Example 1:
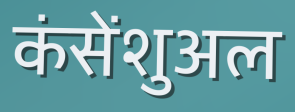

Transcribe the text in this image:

कंसेंशुअल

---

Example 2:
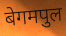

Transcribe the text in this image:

बेगमपुल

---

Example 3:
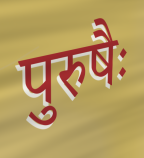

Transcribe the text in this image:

पुरुषैः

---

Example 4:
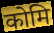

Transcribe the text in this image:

कोमि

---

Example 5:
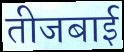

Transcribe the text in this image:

तीजबाई